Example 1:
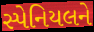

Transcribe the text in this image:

સ્પેનિયલને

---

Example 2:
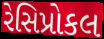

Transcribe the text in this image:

રેસિપ્રોકલ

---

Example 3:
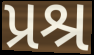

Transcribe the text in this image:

પ્રશ્ર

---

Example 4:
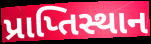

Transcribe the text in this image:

પ્રાપ્તિસ્થાન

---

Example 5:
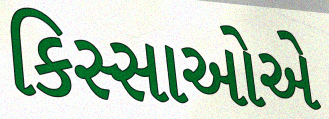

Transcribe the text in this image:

કિસ્સાઓએ